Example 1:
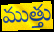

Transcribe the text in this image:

ముత్తు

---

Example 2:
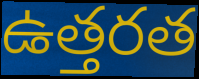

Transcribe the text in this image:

ఉత్తరత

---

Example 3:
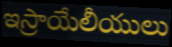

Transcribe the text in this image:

ఇస్రాయేలీయులు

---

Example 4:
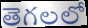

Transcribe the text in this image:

తెగలలో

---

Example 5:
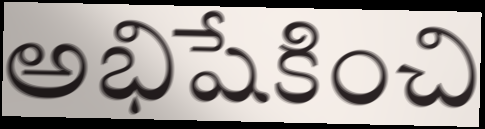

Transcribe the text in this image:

అభిషేకించి